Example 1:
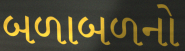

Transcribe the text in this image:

બળાબળનો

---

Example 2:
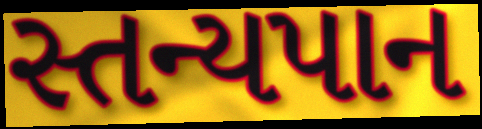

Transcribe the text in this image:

સ્તન્યપાન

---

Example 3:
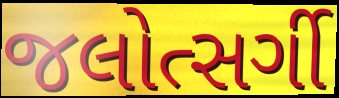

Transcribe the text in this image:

જલોત્સર્ગી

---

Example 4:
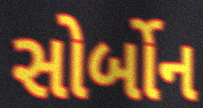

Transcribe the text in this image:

સોર્બોન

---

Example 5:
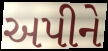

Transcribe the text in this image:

અપીને